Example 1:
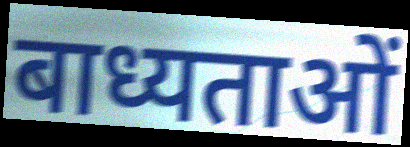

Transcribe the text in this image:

बाध्यताओं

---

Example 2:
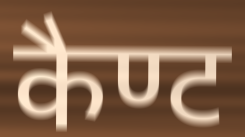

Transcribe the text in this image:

कैण्ट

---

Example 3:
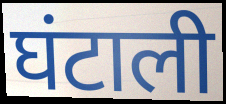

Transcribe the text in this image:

घंटाली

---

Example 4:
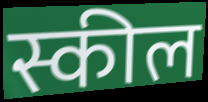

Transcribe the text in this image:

स्‍कील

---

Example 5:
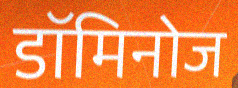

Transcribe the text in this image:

डॉमिनोज